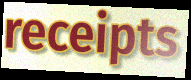
receipts